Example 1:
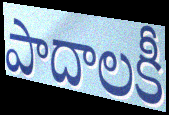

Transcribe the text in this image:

పాదాలకీ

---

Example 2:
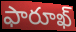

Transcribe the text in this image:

ఫారూఖ్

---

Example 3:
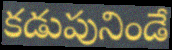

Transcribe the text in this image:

కడుపునిండే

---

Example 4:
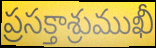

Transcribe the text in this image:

ప్రసక్తాశ్రుముఖీ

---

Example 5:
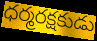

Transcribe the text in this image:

ధర్మరక్షకుడు